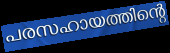
പരസഹായത്തിന്റെ